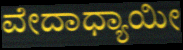
ವೇದಾಧ್ಯಾಯೀ